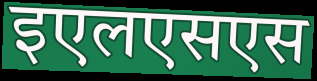
इएलएसएस